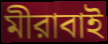
মীরাবাই